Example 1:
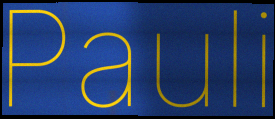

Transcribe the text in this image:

Pauli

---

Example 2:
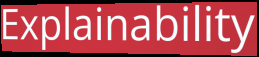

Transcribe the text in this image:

Explainability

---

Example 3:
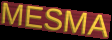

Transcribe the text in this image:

MESMA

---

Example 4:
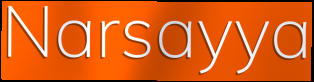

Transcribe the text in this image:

Narsayya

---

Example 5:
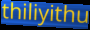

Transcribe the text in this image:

thiliyithu